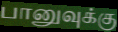
பானுவுக்கு